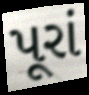
પૂરાં